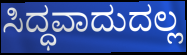
ಸಿದ್ಧವಾದುದಲ್ಲ